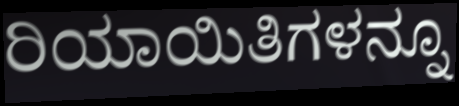
ರಿಯಾಯಿತಿಗಳನ್ನೂ